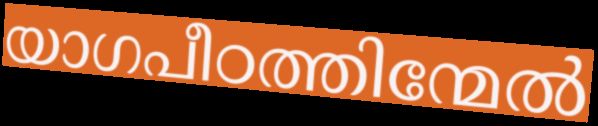
യാഗപീഠത്തിന്മേൽ